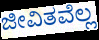
ಜೀವಿತವೆಲ್ಲ